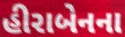
હીરાબેનના